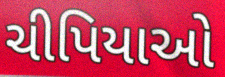
ચીપિયાઓ